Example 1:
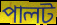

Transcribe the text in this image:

পালট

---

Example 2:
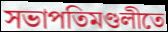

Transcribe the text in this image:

সভাপতিমণ্ডলীতে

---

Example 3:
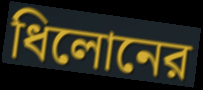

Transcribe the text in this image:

ধিলোনের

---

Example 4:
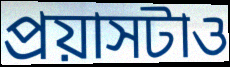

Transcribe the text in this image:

প্রয়াসটাও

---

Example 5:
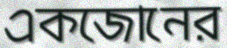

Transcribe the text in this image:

একজোনের